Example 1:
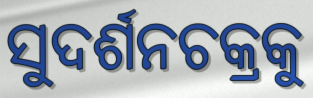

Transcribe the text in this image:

ସୁଦର୍ଶନଚକ୍ରକୁ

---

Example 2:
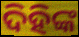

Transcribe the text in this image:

ଦିହିଙ୍କ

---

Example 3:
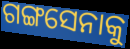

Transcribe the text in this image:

ଗଙ୍ଗସେନାକୁ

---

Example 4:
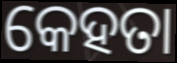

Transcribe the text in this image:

କେହତା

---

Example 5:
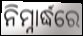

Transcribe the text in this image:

ନିମ୍ନାର୍ଦ୍ଧରେ